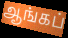
ஆங்கப்